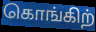
கொங்கிற்